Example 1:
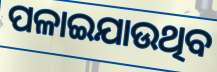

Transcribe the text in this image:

ପଳାଇଯାଉଥିବ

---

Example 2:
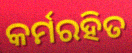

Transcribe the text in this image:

କର୍ମରହିତ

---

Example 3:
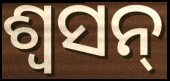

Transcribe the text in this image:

ଶ୍ୱସନ୍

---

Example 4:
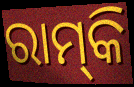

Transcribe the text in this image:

ରାମ୍‌କି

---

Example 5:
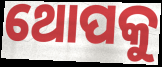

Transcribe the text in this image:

ଥୋପକୁ